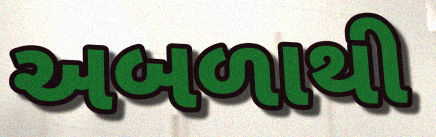
અબળાથી